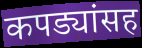
कपड्यांसह